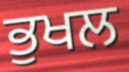
ਭੁਖਲ